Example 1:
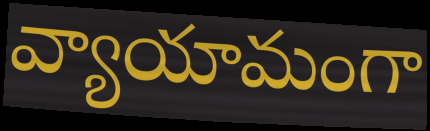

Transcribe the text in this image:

వ్యాయామంగా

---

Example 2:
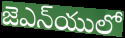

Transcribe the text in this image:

జెఎన్‌యులో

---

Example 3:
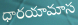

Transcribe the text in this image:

ధారయామాస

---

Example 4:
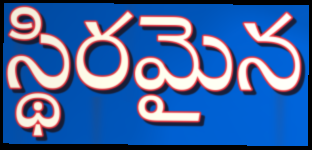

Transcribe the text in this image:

స్థిరమైన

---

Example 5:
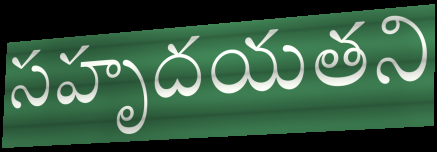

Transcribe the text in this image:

సహృదయతని